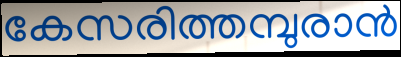
കേസരിത്തമ്പുരാൻ